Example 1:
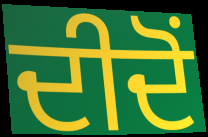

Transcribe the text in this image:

ਦੀਦੋਂ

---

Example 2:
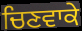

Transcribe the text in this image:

ਚਿਣਵਾਕੇ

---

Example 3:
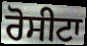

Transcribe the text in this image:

ਰੋਸੀਟਾ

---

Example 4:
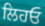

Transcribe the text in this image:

ਲਿਹਓ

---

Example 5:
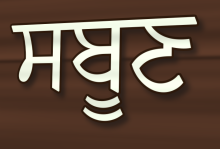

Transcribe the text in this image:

ਸਬੂਣ